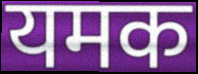
यमक